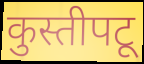
कुस्तीपटू